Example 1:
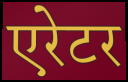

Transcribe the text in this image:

एरेटर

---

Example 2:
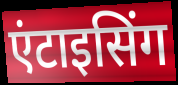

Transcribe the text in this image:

एंटाइसिंग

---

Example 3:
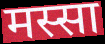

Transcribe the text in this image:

मस्‍सा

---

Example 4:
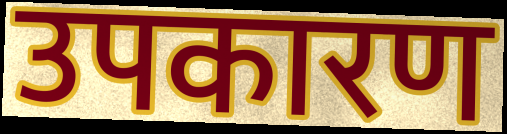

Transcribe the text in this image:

उपकारण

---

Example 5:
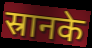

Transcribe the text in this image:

स्रानके